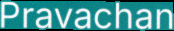
Pravachan